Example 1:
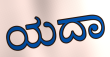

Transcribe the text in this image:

ಯದಾ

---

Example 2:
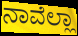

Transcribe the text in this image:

ನಾವೆಲ್ಲಾ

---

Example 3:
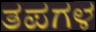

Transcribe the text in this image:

ತಪಗಳ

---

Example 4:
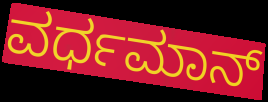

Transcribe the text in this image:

ವರ್ಧಮಾನ್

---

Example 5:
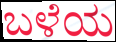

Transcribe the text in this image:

ಬಳೆಯ